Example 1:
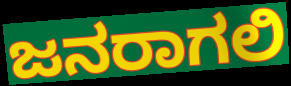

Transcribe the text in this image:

ಜನರಾಗಲಿ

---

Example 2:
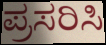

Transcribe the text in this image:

ಪ್ರಸರಿಸಿ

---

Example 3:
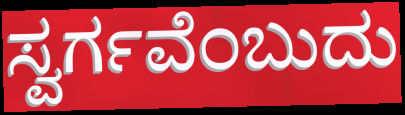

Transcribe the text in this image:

ಸ್ವರ್ಗವೆಂಬುದು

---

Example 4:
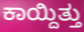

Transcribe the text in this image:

ಕಾಯ್ದಿತ್ತು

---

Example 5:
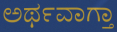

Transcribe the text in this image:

ಅರ್ಥವಾಗ್ತಾ